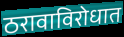
ठरावाविरोधात